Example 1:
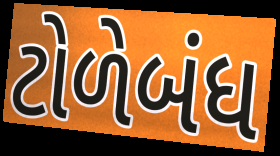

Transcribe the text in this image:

ટોળેબંધ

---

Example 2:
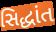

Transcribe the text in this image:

સિદ્ધાંત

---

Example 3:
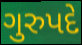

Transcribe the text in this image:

ગુરુપદે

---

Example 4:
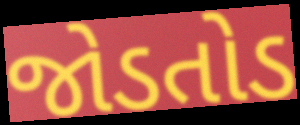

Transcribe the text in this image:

જોડતોડ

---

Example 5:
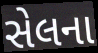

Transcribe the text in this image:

સેલના